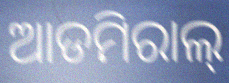
ଆଡମିରାଲ୍